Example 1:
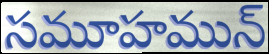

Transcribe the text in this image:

సమూహమున్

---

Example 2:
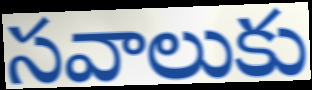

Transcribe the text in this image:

సవాలుకు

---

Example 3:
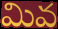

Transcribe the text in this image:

మివ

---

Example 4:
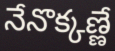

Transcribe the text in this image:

నేనొక్కణ్ణే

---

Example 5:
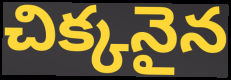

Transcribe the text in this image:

చిక్కనైన